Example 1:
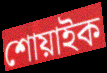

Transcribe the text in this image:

শোয়াইক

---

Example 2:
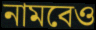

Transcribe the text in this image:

নামবেও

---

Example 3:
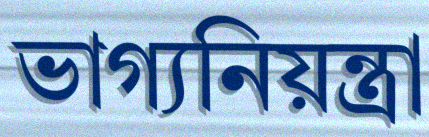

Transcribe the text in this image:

ভাগ্যনিয়ন্ত্রা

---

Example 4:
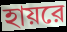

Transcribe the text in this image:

হায়রে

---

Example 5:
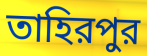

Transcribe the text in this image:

তাহিরপুর